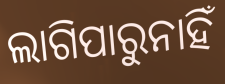
ଲାଗିପାରୁନାହିଁ